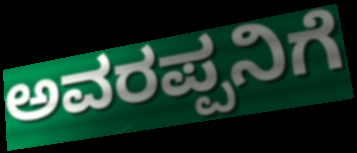
ಅವರಪ್ಪನಿಗೆ